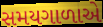
સમયગાળાએ